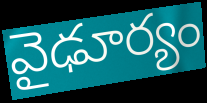
వైఢూర్యం